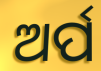
ଅର୍ପ